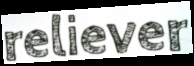
reliever